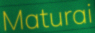
Maturai